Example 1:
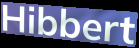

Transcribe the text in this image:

Hibbert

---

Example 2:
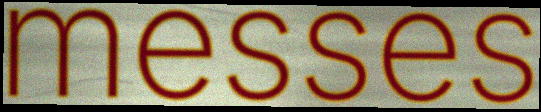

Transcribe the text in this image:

messes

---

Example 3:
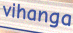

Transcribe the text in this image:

vihanga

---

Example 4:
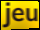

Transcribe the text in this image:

jeu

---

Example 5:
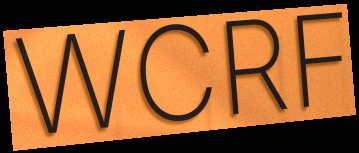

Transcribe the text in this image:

WCRF